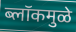
ब्लॉकमुळे